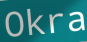
Okra